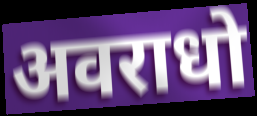
अवराधो